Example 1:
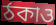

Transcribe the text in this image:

ঠকাও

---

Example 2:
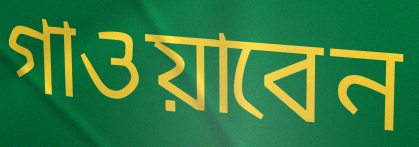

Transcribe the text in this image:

গাওয়াবেন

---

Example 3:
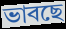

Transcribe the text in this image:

ভাবছে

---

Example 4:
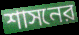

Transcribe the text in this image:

শাসনের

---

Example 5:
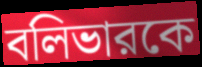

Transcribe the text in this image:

বলিভারকে